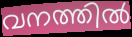
വനത്തിൽ